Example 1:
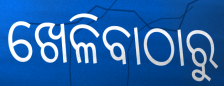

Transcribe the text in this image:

ଖେଳିବାଠାରୁ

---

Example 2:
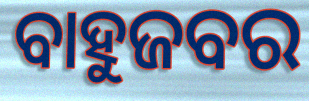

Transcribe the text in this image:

ବାହୁଜବର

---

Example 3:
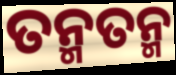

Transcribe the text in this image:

ତନ୍ମତନ୍ମ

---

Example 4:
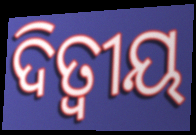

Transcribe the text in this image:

ଦିତ୍ୱୀୟ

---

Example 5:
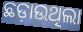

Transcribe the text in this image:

ଛଡ଼ାଉଥିଲା